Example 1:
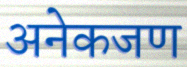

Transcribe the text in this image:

अनेकजण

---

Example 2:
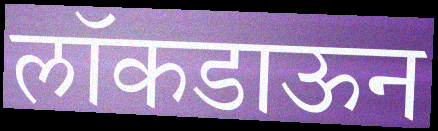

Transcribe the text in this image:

लॉकडाऊन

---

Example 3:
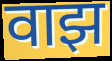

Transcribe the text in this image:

वाझ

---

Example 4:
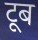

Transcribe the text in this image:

टूब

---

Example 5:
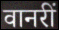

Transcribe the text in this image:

वानरीं